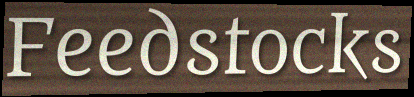
Feedstocks